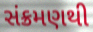
સંક્રમણથી